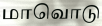
மாவொடு